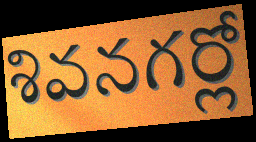
శివనగర్లో